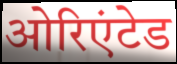
ओरिएंटेड